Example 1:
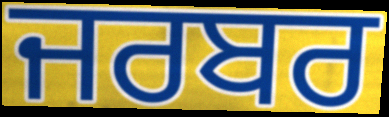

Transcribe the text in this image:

ਜਰਬਰ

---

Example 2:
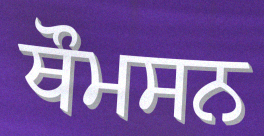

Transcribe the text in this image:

ਥੌਮਸਨ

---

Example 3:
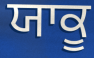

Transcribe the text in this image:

ਯਾਕੂ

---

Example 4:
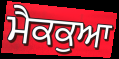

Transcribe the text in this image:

ਮੈਕਕੁਆ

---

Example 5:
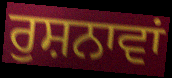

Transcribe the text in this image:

ਰੁਸ਼ਨਾਵਾਂ